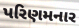
પરિણમનાર